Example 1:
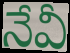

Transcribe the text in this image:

నేవీ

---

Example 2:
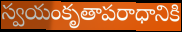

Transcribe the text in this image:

స్వయంకృతాపరాధానికి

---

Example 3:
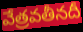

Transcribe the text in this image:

వేత్రవతీనదీ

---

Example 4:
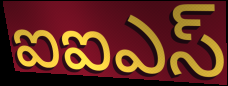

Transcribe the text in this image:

ఐఐఎస్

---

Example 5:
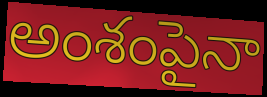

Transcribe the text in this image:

అంశంపైనా